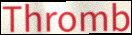
Thromb